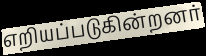
எறியப்படுகின்றனர்